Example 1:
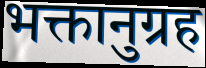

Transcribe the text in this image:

भक्तानुग्रह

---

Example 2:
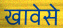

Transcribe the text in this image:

खावेसे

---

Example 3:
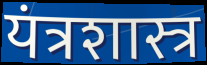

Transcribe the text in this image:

यंत्रशास्त्र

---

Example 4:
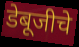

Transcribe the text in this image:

डेबूजीचे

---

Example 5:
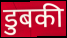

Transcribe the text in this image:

डुबकी